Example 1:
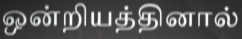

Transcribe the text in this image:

ஒன்றியத்தினால்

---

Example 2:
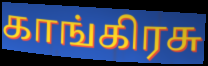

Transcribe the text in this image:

காங்கிரசு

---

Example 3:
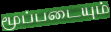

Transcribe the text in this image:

மூப்படையும்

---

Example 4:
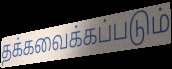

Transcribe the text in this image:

தக்கவைக்கப்படும்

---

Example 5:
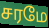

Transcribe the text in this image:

சரமே